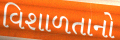
વિશાળતાનો